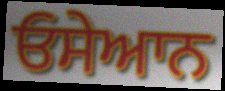
ਓਸੇਆਨ